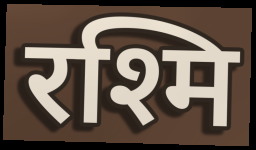
रश्मि